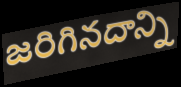
జరిగినదాన్ని